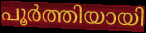
പൂർത്തിയായി